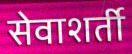
सेवाशर्ती